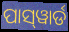
ପାସ୍‌ୱାର୍ଡ